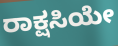
ರಾಕ್ಷಸಿಯೇ